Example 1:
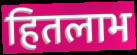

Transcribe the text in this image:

हितलाभ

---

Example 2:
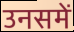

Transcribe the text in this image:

उनसमें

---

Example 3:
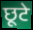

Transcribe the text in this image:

छूटे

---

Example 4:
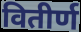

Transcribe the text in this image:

वितीर्ण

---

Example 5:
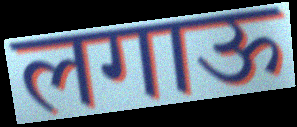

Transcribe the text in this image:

लगाऊ